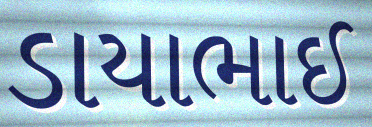
ડાયાભાઈ